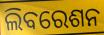
ଲିବରେଶନ